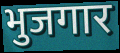
भुजगार